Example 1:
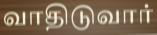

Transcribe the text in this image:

வாதிடுவார்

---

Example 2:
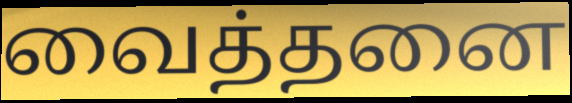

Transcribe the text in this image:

வைத்தனை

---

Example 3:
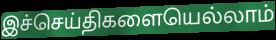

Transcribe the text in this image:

இச்செய்திகளையெல்லாம்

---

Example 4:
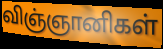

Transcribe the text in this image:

விஞ்ஞானிகள்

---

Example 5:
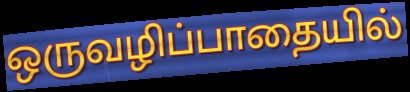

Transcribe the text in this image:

ஒருவழிப்பாதையில்